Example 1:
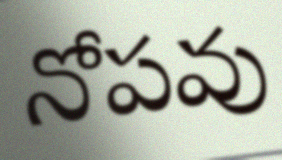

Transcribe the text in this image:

నోపవు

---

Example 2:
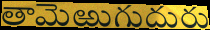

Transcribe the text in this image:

తామెఱుగుదురు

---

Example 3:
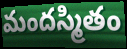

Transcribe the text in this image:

మందస్మితం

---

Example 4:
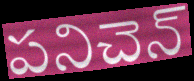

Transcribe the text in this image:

పనిచెన్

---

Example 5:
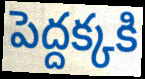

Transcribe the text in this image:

పెద్దక్కకి